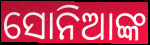
ସୋନିଆଙ୍କ